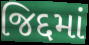
જિદ્દમાં